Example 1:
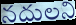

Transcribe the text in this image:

నదులని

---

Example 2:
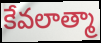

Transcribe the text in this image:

కేవలాత్మా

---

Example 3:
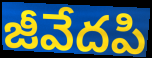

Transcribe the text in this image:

జీవేదపి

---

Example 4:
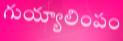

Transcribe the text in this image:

గుయ్యాలింపం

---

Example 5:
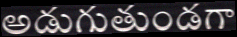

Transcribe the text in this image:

అడుగుతుండగా